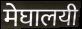
मेघालयी